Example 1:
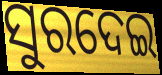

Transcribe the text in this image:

ସୁରଦେଇ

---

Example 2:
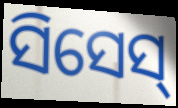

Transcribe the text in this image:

ସିସେସ୍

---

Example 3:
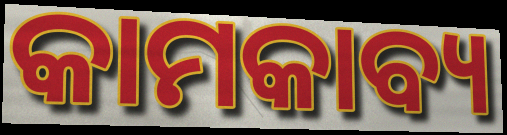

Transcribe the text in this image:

କାମକାବ୍ୟ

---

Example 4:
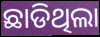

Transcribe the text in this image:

ଛାଡିଥିଲା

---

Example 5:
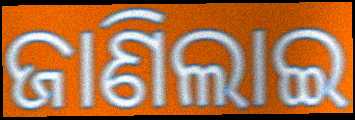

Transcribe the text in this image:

ଜାଣିଲାଇ